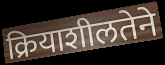
क्रियाशीलतेने